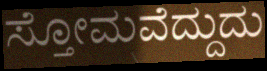
ಸ್ತೋಮವೆದ್ದುದು